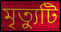
মৃত্যুটি